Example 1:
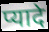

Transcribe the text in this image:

प्यादे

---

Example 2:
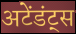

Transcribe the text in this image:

अटेंडंट्स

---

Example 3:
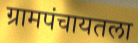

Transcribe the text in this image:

ग्रामपंचायतला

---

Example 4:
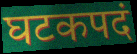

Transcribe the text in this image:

घटकपदं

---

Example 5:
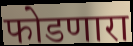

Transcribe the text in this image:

फोडणारा